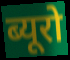
ब्यूरो